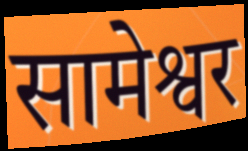
सामेश्वर